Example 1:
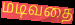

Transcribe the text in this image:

மடிவதை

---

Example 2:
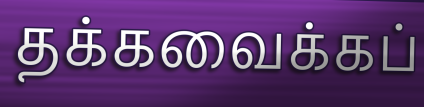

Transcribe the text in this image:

தக்கவைக்கப்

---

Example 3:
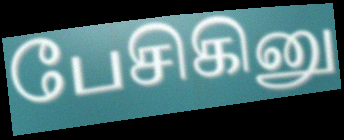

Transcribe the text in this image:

பேசிகினு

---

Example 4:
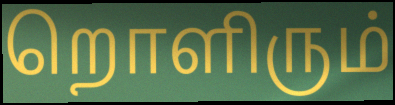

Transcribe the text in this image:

றொளிரும்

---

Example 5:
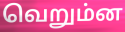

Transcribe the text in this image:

வெறும்ன